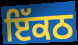
ਇੱਕਠ